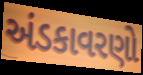
અંડકાવરણો